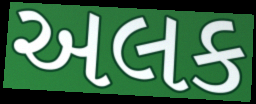
અલક